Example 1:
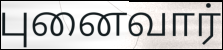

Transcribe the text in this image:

புனைவார்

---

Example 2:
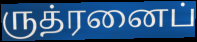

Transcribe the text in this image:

ருத்ரனைப்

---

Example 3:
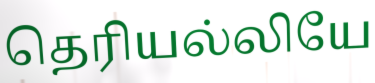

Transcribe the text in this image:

தெரியல்லியே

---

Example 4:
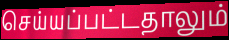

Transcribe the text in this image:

செய்யப்பட்டதாலும்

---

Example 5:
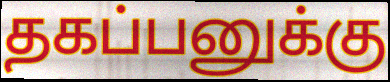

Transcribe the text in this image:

தகப்பனுக்கு